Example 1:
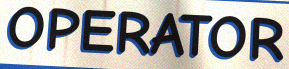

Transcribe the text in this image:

OPERATOR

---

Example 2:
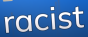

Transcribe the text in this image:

racist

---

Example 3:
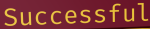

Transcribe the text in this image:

Successful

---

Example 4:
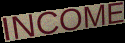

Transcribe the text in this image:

INCOME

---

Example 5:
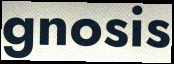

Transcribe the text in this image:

gnosis